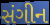
સંગીન